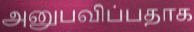
அனுபவிப்பதாக